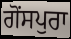
ਗੋਂਸਪੁਰਾ